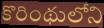
కొరింథులోని